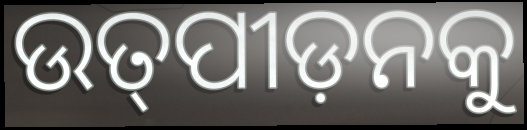
ଉତ୍‌ପୀଡ଼ନକୁ